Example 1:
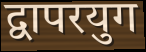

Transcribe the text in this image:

द्वापरयुग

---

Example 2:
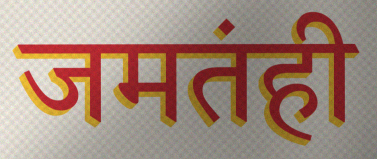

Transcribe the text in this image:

जमतंही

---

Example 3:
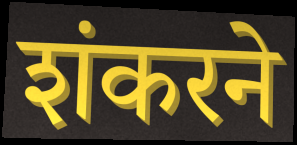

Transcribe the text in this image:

शंकरने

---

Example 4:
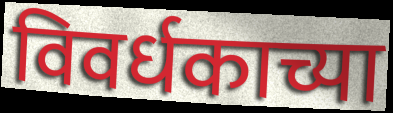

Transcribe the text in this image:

विवर्धकाच्या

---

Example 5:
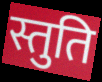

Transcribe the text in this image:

स्तुति